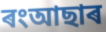
ৰংআছাৰ